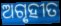
ଅଗୃହୀତ